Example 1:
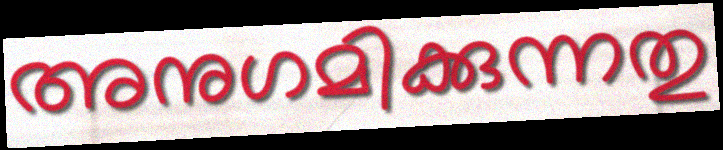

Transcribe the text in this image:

അനുഗമിക്കുന്നതു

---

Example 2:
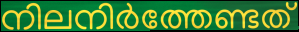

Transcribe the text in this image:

നിലനിർത്തേണ്ടത്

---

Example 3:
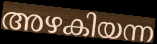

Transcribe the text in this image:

അഴകിയന്ന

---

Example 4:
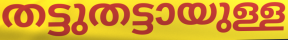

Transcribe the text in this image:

തട്ടുതട്ടായുള്ള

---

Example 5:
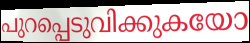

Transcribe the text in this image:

പുറപ്പെടുവിക്കുകയോ